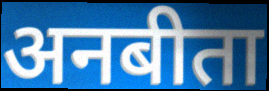
अनबीता